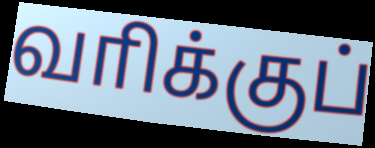
வரிக்குப்